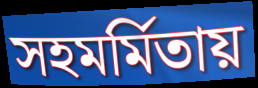
সহমর্মিতায়